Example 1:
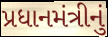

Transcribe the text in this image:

પ્રધાનમંત્રીનું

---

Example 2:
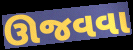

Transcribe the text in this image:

ઊજવવા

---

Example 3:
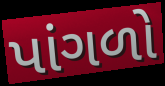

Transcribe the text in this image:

પાંગળો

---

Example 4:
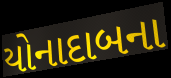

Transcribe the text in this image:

યોનાદાબના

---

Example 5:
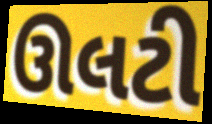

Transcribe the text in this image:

ઊલટી